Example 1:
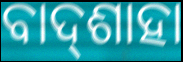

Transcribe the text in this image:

ବାଦ୍‌ଶାହା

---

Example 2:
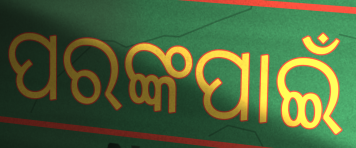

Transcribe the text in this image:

ପରଙ୍କପାଇଁ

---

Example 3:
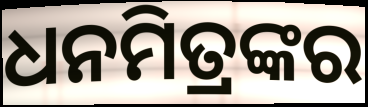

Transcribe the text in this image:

ଧନମିତ୍ରଙ୍କର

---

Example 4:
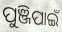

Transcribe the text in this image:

ପୁଞ୍ଜିପାଇଁ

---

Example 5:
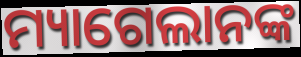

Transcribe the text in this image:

ମ୍ୟାଗେଲାନଙ୍କ